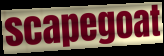
scapegoat